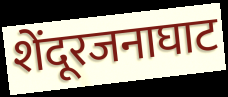
शेंदूरजनाघाट